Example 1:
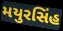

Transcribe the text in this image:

મયુરસિંહ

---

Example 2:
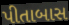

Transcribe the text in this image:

પીતાબાસ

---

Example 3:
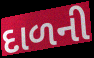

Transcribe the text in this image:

દાળની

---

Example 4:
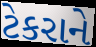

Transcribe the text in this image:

ટેકરાને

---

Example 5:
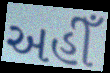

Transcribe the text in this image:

અહીઁ